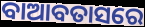
ବାଆବତାସରେ